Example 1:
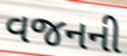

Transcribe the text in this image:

વજનની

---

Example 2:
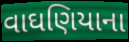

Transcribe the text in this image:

વાઘણિયાના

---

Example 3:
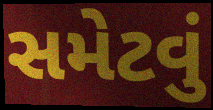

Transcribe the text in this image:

સમેટવું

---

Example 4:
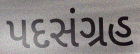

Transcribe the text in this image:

પદસંગ્રહ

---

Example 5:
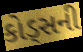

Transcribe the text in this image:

કોડ્સની